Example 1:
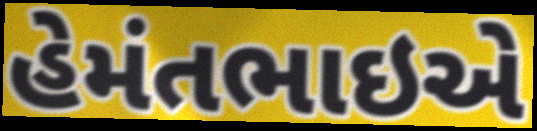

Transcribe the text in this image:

હેમંતભાઇએ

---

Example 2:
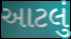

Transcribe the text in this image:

આટલું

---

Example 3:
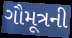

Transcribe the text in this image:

ગૌમૂત્રની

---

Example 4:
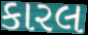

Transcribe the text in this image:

કારલ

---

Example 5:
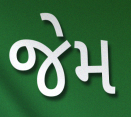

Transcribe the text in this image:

જેમ